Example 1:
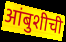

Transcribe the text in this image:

आंबुशीची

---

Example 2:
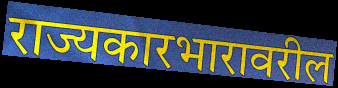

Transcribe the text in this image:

राज्यकारभारावरील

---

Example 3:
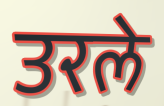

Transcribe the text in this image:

उरले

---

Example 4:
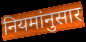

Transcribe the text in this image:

नियमांनुसार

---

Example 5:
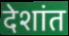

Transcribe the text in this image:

देशांत